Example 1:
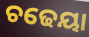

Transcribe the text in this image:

ଚଢେୟା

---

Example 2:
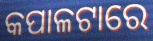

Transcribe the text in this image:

କପାଳଟାରେ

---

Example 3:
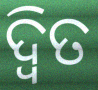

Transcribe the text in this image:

ଦ୍ବିତ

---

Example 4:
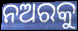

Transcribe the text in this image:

ନଅରକୁ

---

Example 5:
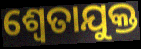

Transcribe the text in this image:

ଶ୍ଵେତାଯୁକ୍ତ